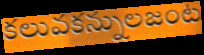
కలువకన్నులజంట